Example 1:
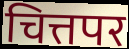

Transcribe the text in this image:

चित्तपर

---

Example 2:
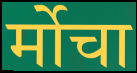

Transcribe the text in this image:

र्मोचा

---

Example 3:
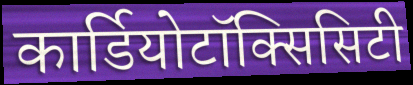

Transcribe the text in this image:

कार्डियोटॉक्सिसिटी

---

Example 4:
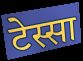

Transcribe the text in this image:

टेस्सा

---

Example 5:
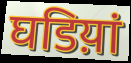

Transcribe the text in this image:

घडिय़ां